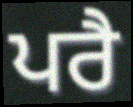
ਪਰੈ